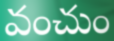
వంచుం